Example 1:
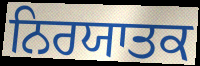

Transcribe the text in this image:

ਨਿਰਯਾਤਕ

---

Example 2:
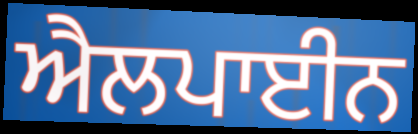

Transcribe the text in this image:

ਐਲਪਾਈਨ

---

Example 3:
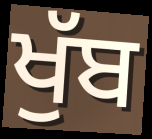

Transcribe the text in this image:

ਖੁੱਬ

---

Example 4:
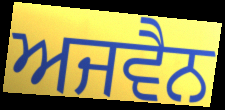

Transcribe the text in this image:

ਅਜਵੈਨ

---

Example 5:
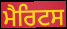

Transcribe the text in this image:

ਮੈਰਿਟਸ